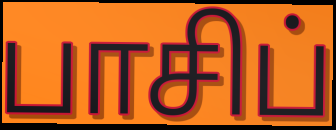
பாசிப்